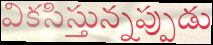
వికసిస్తున్నప్పుడు